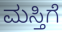
ಮಸ್ತಿಗೆ